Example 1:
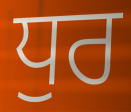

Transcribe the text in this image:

ਧੁਰ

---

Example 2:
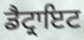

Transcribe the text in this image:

ਡੈਟ੍ਰਾਇਟ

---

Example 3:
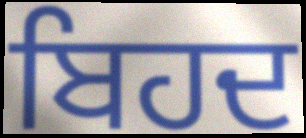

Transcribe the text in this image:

ਬਿਹਦ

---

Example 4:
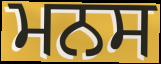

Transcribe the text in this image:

ਮਨਸ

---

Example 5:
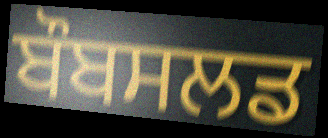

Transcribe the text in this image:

ਬੌਬਸਲਡ